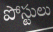
పోస్టులు